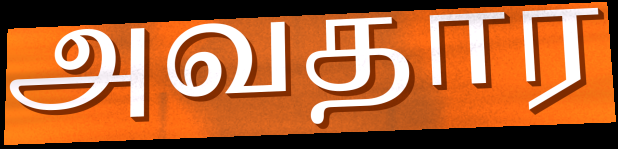
அவதார